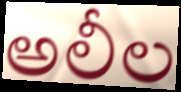
అలీల